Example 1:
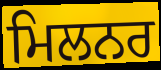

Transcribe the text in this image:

ਮਿਲਨਰ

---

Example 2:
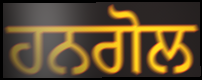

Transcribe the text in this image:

ਹਨਗੋਲ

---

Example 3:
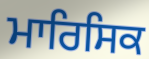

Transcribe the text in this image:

ਮਾਰਿਸਿਕ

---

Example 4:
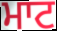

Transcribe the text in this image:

ਮਾਟ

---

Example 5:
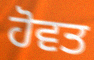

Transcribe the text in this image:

ਹੋਵਤ